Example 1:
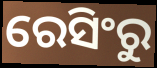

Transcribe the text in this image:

ରେସିଂରୁ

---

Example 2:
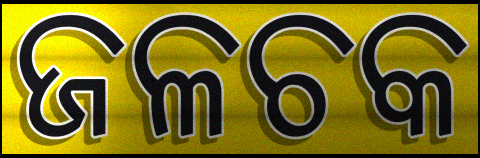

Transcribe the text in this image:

ଜଳଚକ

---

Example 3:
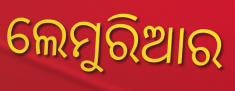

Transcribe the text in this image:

ଲେମୁରିଆର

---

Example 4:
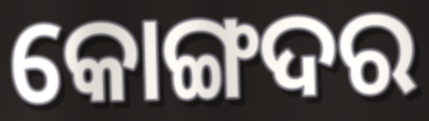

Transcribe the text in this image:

କୋଙ୍ଗଦର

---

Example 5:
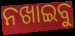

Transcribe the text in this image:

ନଖାଇବୁ